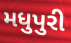
મધુપુરી